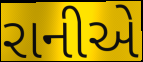
રાનીએ